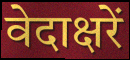
वेदाक्षरें